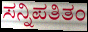
ಸನ್ನಿಪತಿತಂ